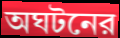
অঘটনের